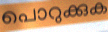
പൊറുക്കുക